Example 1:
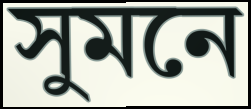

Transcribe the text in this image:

সুমনে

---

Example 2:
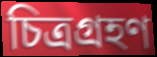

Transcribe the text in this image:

চিত্ৰগ্ৰহণ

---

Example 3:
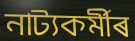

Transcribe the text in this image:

নাট্যকৰ্মীৰ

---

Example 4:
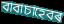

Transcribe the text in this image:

বাবাচাহেবৰ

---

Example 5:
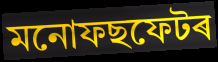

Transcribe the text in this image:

মনোফছফেটৰ